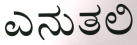
ಎನುತಲಿ